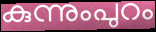
കുന്നുംപുറം